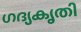
ഗദ്യകൃതി